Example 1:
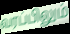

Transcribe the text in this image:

வரப்பிலும்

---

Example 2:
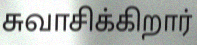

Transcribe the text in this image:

சுவாசிக்கிறார்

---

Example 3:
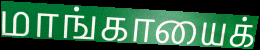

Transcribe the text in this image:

மாங்காயைக்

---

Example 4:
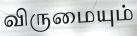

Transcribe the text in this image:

விருமையும்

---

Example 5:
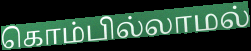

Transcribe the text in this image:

கொம்பில்லாமல்